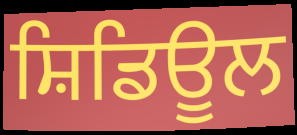
ਸ਼ਿਡਿਊਲ